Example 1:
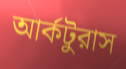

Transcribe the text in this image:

আর্কটুরাস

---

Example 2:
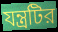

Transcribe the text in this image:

যন্ত্রটির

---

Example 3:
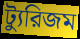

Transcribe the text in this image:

ট্যুরিজম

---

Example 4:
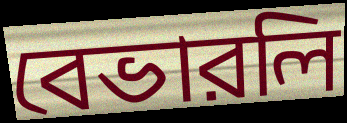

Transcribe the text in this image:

বেভারলি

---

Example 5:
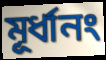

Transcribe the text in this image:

মূর্ধানং